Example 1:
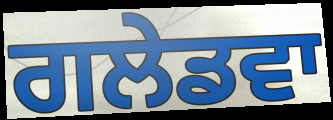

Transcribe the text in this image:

ਗਲੇਡਵਾ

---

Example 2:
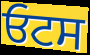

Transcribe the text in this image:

ਓਟਸ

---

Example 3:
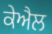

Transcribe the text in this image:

ਕੇਐਲ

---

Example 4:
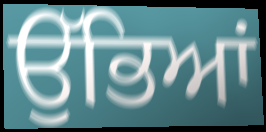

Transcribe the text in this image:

ਉੱਭਿਆਂ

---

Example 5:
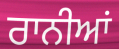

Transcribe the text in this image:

ਰਾਨੀਆਂ